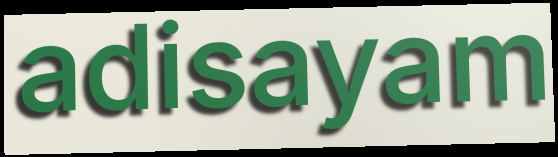
adisayam